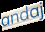
andaj